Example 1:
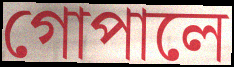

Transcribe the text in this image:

গোপালে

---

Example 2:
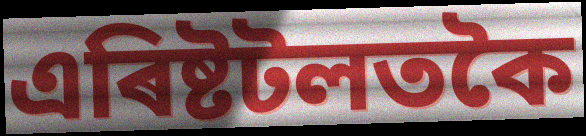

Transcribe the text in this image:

এৰিষ্টটলতকৈ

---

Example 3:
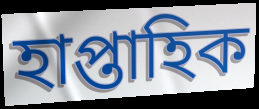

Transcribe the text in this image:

হাপ্তাহিক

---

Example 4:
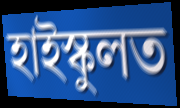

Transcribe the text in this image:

হাইস্কুলত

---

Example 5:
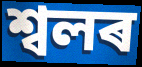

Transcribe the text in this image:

শ্বলৰ